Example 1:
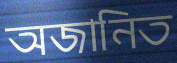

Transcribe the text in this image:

অজানিত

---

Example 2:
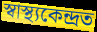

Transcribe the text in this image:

স্বাস্থ্যকেন্দ্ৰত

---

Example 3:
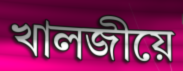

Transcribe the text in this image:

খালজীয়ে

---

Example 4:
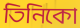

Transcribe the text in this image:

তিনিকো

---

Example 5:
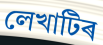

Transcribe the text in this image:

লেখাটিৰ